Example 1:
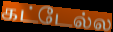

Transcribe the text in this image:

கட்டேல்ல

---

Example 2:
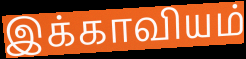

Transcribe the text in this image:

இக்காவியம்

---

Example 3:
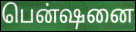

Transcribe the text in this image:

பென்ஷனை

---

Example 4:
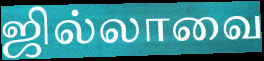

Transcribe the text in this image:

ஜில்லாவை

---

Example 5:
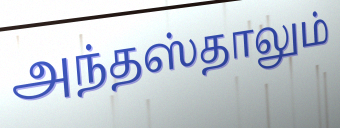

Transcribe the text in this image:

அந்தஸ்தாலும்